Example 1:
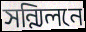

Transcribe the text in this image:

সন্মিলনে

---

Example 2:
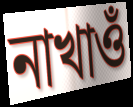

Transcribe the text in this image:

নাখাওঁ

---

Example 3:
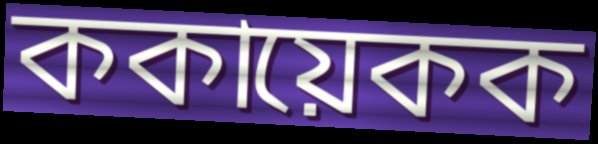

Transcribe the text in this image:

ককায়েকক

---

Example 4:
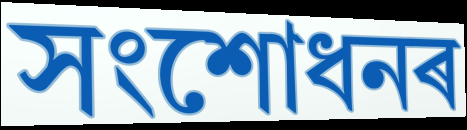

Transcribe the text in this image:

সংশোধনৰ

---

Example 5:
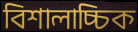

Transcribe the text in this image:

বিশালাচ্চিক